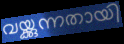
വയ്ക്കുന്നതായി